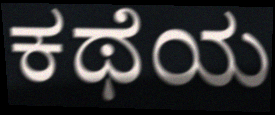
ಕಥೆಯ